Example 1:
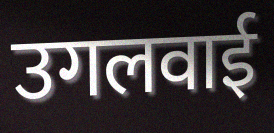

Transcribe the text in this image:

उगलवाई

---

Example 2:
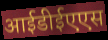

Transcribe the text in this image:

आईडीईएएस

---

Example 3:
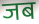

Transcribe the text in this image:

जब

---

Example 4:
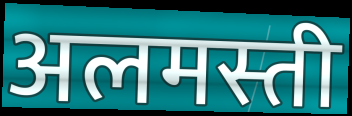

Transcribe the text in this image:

अलमस्ती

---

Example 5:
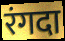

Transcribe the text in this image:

रंगदा